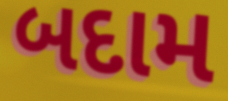
બદામ